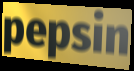
pepsin